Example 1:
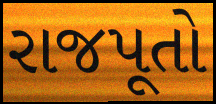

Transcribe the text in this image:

રાજપૂતો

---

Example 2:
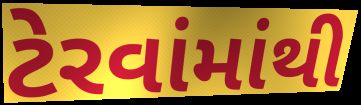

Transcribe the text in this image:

ટેરવાંમાંથી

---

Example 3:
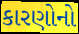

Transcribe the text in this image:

કારણોનો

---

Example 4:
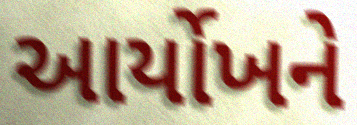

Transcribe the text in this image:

આર્યોખને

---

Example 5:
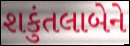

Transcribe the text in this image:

શકુંતલાબેને